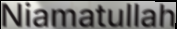
Niamatullah